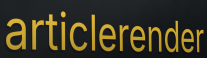
articlerender